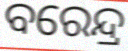
ବରେନ୍ଦ୍ର